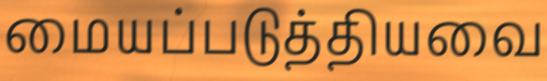
மையப்படுத்தியவை